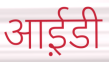
आई़डी